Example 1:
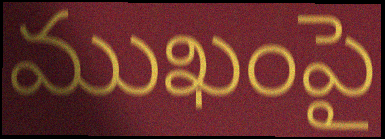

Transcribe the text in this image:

ముఖంపై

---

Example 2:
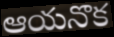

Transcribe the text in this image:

ఆయనొక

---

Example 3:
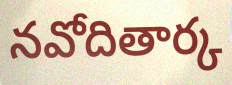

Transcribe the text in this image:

నవోదితార్క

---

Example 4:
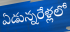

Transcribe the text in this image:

ఏడున్నరేళ్లలో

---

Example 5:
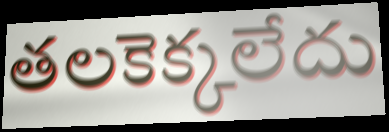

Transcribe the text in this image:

తలకెక్కలేదు